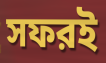
সফরই